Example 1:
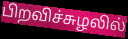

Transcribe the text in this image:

பிறவிச்சுழலில்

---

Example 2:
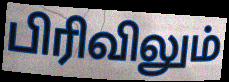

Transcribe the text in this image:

பிரிவிலும்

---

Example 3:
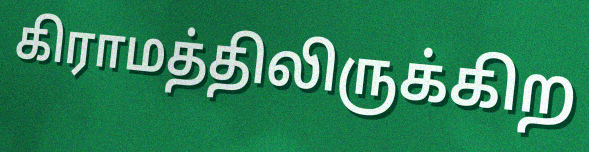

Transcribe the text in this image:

கிராமத்திலிருக்கிற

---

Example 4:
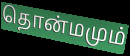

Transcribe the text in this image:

தொன்மமும்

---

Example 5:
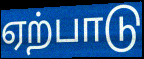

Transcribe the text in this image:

ஏற்பாடு